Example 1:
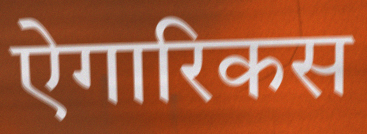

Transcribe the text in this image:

ऐगारिकस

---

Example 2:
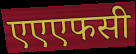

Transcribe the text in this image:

एएएफसी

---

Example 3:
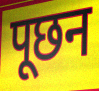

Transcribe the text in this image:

पूछन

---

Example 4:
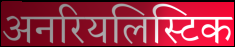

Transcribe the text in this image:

अनरियलिस्टिक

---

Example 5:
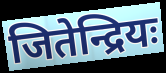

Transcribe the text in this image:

जितेन्द्रियः